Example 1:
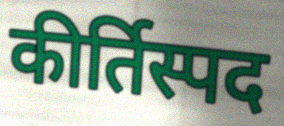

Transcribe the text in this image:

कीर्तिस्पद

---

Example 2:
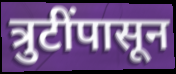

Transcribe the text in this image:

त्रुटींपासून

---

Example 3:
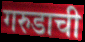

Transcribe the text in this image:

गरुडाची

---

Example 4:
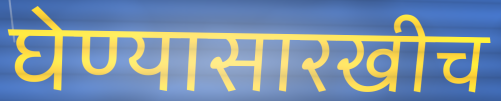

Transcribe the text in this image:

घेण्यासारखीच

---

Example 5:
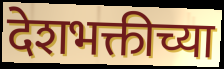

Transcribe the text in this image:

देशभक्तीच्या